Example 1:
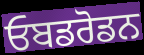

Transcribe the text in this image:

ਓਬਡਰੋਡਨ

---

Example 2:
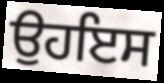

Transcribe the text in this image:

ਉਹਇਸ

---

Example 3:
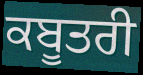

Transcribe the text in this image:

ਕਬੂਤਰੀ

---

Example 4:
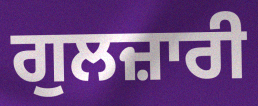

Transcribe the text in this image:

ਗੁਲਜ਼ਾਰੀ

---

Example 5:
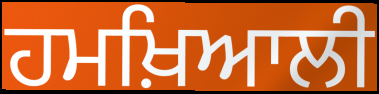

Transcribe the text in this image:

ਹਮਖ਼ਿਆਲੀ